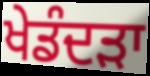
ਖੇਡੰਦੜਾ